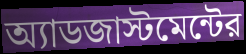
অ্যাডজাস্টমেন্টের